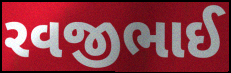
રવજીભાઈ